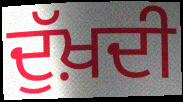
ਦੁੱਖ਼ਦੀ